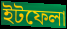
ইটফেলা